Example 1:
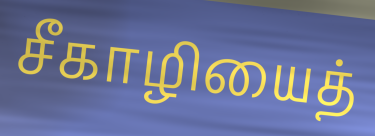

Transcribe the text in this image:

சீகாழியைத்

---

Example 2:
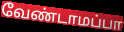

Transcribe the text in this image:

வேண்டாமப்பா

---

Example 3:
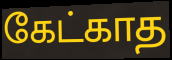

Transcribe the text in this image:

கேட்காத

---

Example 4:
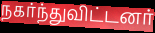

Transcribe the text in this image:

நகர்ந்துவிட்டனர்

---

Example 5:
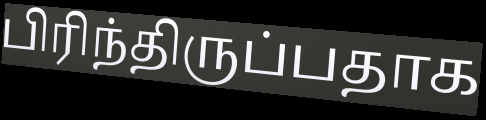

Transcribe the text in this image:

பிரிந்திருப்பதாக